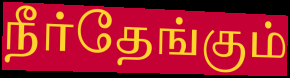
நீர்தேங்கும்